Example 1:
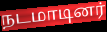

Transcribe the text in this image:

நடமாடினர்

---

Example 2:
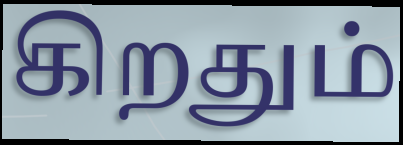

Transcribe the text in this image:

கிறதும்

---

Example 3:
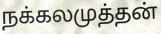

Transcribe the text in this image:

நக்கலமுத்தன்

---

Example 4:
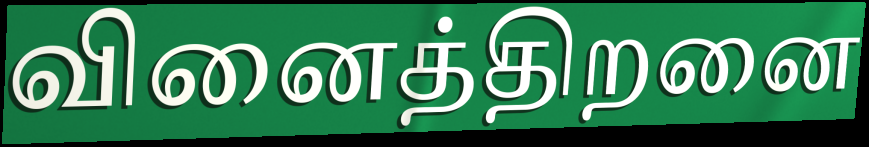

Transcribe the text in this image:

வினைத்திறனை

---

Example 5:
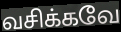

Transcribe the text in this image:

வசிக்கவே